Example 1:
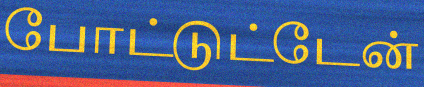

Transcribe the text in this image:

போட்டுட்டேன்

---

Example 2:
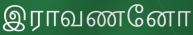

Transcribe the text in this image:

இராவணனோ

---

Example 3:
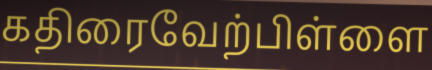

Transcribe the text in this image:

கதிரைவேற்பிள்ளை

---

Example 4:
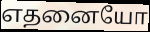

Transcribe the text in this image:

எதனையோ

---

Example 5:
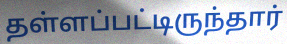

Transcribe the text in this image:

தள்ளப்பட்டிருந்தார்